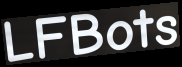
LFBots